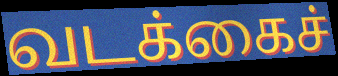
வடக்கைச்